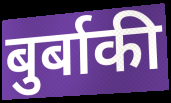
बुर्बाकी